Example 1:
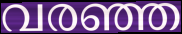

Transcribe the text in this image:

വരഞ്ഞ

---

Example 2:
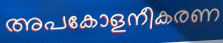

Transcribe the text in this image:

അപകോളനീകരണ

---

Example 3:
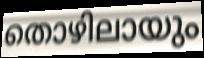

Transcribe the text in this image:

തൊഴിലായും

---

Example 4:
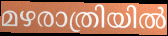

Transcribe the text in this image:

മഴരാത്രിയിൽ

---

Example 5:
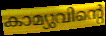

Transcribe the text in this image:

കാമ്യുവിന്റെ